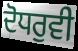
ਦੋਧਰੁਵੀ